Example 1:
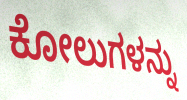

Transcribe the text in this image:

ಕೋಲುಗಳನ್ನು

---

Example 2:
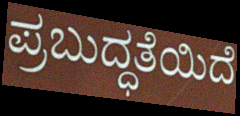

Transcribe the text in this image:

ಪ್ರಬುದ್ಧತೆಯಿದೆ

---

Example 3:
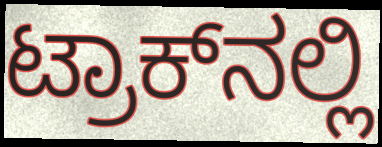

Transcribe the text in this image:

ಟ್ರಾಕ್‌ನಲ್ಲಿ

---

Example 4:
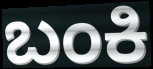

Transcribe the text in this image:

ಬಂಕಿ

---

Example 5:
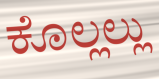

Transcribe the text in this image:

ಕೊಲ್ಲಲ್ಲು